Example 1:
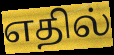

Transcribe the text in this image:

எதில்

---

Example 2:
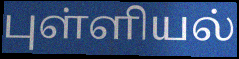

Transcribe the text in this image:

புள்ளியல்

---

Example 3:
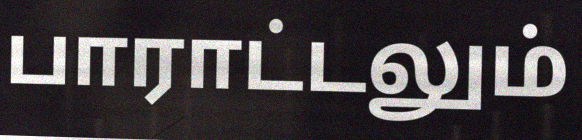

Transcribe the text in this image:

பாராட்டலும்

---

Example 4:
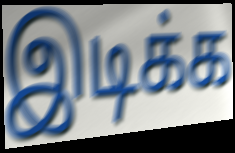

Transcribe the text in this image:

இடிக்க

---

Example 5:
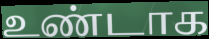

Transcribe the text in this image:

உண்டாக